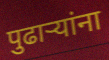
पुढाऱ्यांना